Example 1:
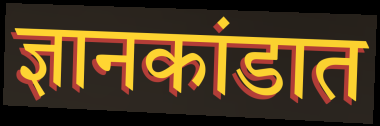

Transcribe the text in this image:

ज्ञानकांडात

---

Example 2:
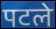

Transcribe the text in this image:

पटले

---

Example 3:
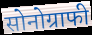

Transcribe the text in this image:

सोनोग्राफी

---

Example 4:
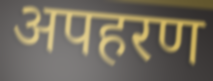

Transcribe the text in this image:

अपहरण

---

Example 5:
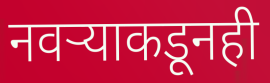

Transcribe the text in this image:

नवऱ्याकडूनही